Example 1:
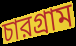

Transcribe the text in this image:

চারগ্রাম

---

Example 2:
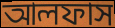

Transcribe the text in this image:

আলফাস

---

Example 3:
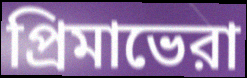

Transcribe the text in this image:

প্রিমাভেরা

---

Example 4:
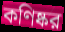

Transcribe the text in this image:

কণিষ্কর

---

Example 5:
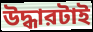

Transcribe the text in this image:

উদ্ধারটাই